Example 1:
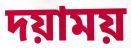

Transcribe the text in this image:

দয়াময়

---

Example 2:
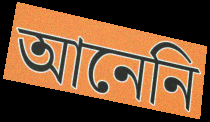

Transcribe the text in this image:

আনেনি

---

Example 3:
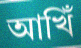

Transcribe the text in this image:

আখিঁ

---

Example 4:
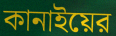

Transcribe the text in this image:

কানাইয়ের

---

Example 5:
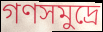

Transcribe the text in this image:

গণসমুদ্রে